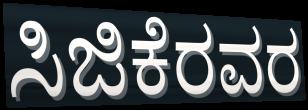
ಸಿಜಿಕೆರವರ